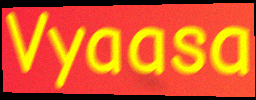
Vyaasa